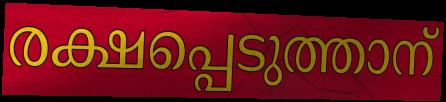
രക്ഷപ്പെടുത്താന്